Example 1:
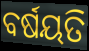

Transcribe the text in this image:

ବର୍ଷୟତି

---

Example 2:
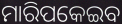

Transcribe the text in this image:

ମାରିପକେଇବ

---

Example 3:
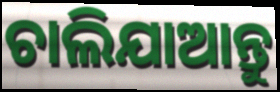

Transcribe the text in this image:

ଚାଲିଯାଆନ୍ତୁ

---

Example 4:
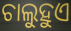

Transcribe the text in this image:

ଚାଲୁହୁଏ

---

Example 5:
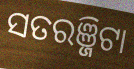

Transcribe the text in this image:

ସତରଞ୍ଜିଟା